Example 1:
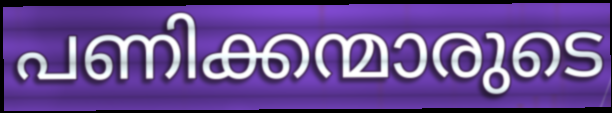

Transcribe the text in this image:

പണിക്കന്മാരുടെ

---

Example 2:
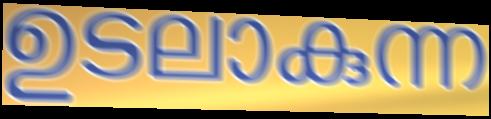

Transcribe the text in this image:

ഉടലാകുന്ന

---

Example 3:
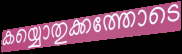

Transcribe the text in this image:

കയ്യൊതുക്കത്തോടെ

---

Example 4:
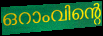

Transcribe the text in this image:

ഒറാംവിന്റെ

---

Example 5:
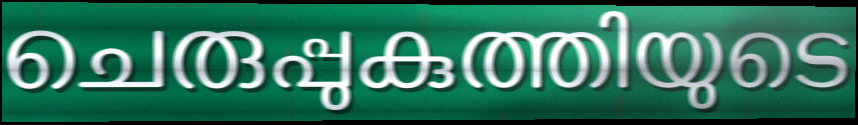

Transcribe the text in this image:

ചെരുപ്പുകുത്തിയുടെ